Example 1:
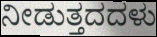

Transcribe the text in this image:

ನೀಡುತ್ತದದಳು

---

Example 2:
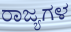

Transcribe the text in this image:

ರಾಜ್ಯಗಳ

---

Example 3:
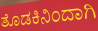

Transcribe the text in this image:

ತೊಡಕಿನಿಂದಾಗಿ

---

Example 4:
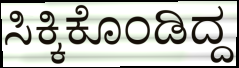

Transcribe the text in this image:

ಸಿಕ್ಕಿಕೊಂಡಿದ್ದ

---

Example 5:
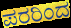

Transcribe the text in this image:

ಪರರಿಂದ